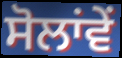
ਸੋਲਾਂਵੇਂ